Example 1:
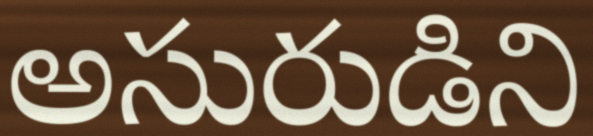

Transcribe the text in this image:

అసురుడిని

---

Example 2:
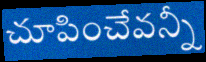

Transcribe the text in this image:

చూపించేవన్నీ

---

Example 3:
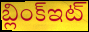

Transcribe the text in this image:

బ్లింక్ఇట్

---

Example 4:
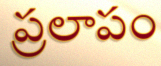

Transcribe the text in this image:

ప్రలాపం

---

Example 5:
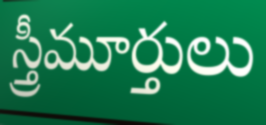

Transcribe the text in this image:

స్త్రీమూర్తులు